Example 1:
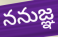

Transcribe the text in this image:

ననుజ్ఞ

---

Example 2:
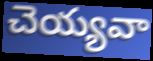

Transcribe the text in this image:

చెయ్యవా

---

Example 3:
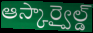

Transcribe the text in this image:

ఆస్కార్వైల్డ్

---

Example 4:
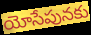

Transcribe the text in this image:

యోసేపునకు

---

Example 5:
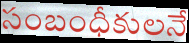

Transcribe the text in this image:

సంబంధీకులనే